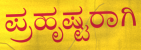
ಪ್ರಹೃಷ್ಟರಾಗಿ